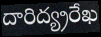
దారిద్య్రరేఖ